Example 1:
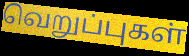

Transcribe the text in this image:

வெறுப்புகள்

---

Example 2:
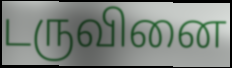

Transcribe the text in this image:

டருவினை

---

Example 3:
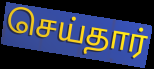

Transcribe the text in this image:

செய்தார்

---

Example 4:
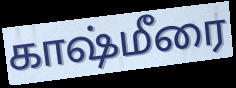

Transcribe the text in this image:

காஷ்மீரை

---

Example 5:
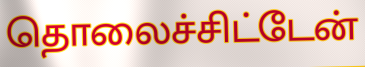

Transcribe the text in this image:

தொலைச்சிட்டேன்